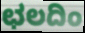
ಛಲದಿಂ